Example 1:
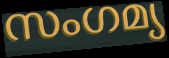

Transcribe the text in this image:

സംഗമ്യ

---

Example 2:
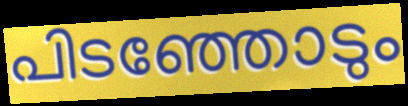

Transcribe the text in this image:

പിടഞ്ഞോടും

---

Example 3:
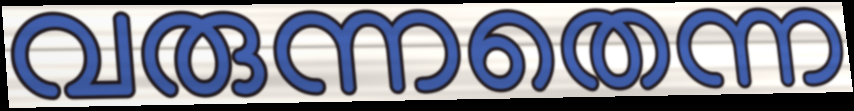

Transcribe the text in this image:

വരുന്നതെന്ന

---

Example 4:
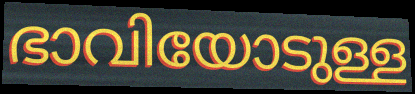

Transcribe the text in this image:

ഭാവിയോടുള്ള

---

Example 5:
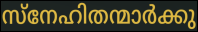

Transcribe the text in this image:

സ്നേഹിതന്മാർക്കു